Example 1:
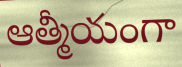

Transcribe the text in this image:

ఆత్మీయంగా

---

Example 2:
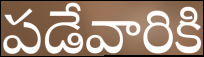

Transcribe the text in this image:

పడేవారికి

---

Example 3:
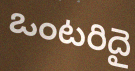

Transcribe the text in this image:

ఒంటరిదై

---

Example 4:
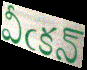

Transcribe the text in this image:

వీఁకన్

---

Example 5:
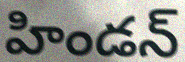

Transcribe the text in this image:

హిండన్